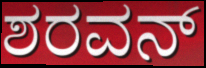
ಶರವನ್